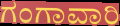
ಗಂಗಾವಾರಿ